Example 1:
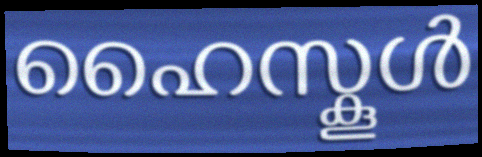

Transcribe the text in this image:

ഹൈസ്കൂൾ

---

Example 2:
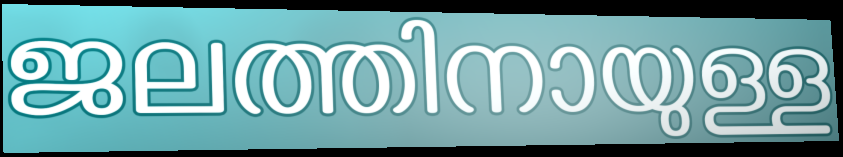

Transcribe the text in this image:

ജലത്തിനായുള്ള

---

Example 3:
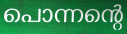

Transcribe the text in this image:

പൊന്നന്റെ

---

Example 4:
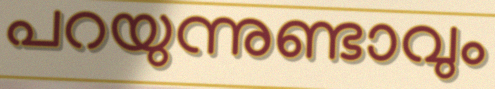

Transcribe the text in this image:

പറയുന്നുണ്ടാവും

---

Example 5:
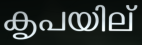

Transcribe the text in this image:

കൃപയില്